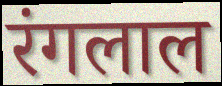
रंगलाल